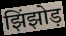
झिंझोड़